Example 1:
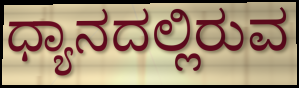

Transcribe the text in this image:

ಧ್ಯಾನದಲ್ಲಿರುವ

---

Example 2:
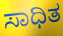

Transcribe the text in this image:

ಸಾಧಿತ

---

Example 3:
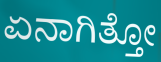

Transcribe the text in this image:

ಏನಾಗಿತ್ತೋ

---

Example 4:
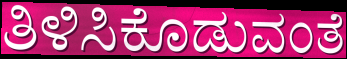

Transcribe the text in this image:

ತಿಳಿಸಿಕೊಡುವಂತೆ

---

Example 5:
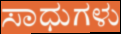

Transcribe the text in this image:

ಸಾಧುಗಳು